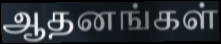
ஆதனங்கள்